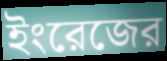
ইংরেজের